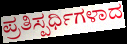
ಪ್ರತಿಸ್ಪರ್ಧಿಗಳಾದ